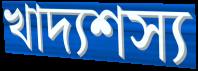
খাদ্যশস্য